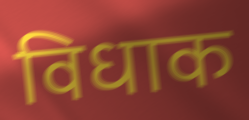
विधाक